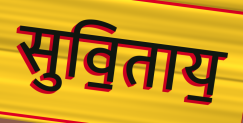
सुवि॒ताय॒